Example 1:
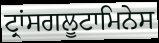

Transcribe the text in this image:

ਟ੍ਰਾਂਸਗਲੂਟਾਮਿਨੇਸ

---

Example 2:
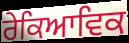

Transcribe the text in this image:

ਰੇਕਿਆਵਿਕ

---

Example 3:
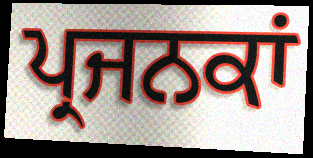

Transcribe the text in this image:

ਪ੍ਰਜਨਕਾਂ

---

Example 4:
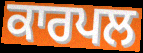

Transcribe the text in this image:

ਕਾਰਪਲ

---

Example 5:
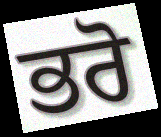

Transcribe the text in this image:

ਭਰੋ